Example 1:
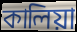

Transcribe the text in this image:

কালিয়া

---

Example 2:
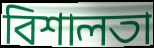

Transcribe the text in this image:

বিশালতা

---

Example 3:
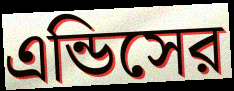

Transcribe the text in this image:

এন্ডিসের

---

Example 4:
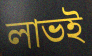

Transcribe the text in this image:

লাভই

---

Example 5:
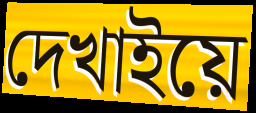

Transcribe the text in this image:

দেখাইয়ে